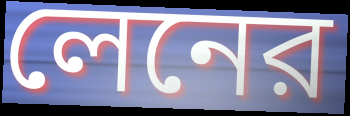
লেনের